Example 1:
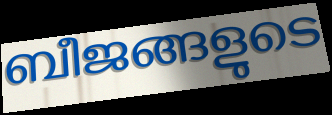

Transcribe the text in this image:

ബീജങ്ങളുടെ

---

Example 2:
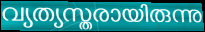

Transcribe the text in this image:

വ്യത്യസ്തരായിരുന്നു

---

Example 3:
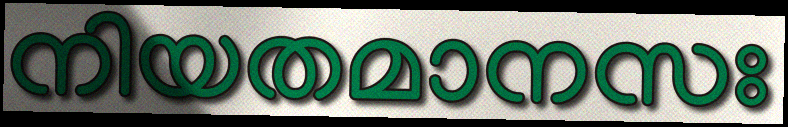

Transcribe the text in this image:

നിയതമാനസഃ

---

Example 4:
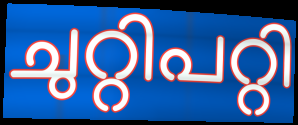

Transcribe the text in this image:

ചുറ്റിപറ്റി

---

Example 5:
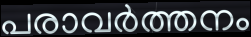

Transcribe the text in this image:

പരാവർത്തനം